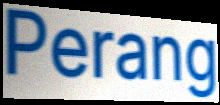
Perang